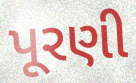
પૂરણી